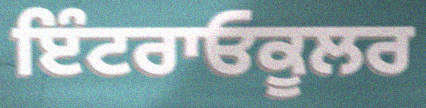
ਇੰਟਰਾਓਕੂਲਰ